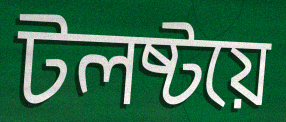
টলষ্টয়ে